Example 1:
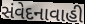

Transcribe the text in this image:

સંવેદનાવાહી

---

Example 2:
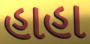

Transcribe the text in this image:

હાહા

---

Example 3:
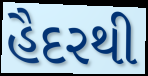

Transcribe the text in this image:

હૈદરથી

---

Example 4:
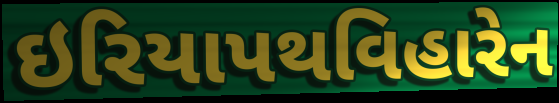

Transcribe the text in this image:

ઇરિયાપથવિહારેન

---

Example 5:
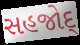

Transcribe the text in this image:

સહજોદ્